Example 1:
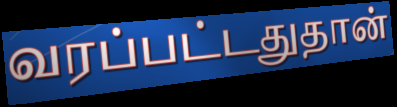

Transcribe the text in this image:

வரப்பட்டதுதான்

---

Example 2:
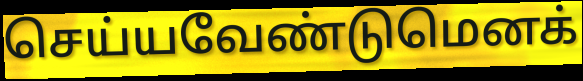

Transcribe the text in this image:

செய்யவேண்டுமெனக்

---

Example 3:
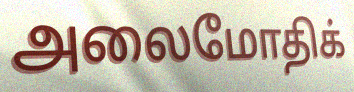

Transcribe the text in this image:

அலைமோதிக்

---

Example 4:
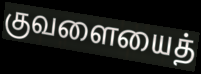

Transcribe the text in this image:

குவளையைத்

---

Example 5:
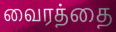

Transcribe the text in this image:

வைரத்தை